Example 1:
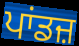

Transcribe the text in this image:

ਪਾਂਡਜ਼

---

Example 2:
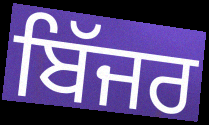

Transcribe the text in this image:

ਬਿੱਜਰ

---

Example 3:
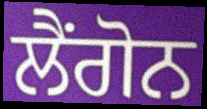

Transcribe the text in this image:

ਲੈਂਗੋਨ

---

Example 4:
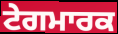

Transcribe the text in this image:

ਟੇਗਮਾਰਕ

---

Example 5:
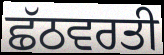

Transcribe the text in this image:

ਛੱਠਵਰਤੀ